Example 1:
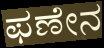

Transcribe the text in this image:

ಫಣೇನ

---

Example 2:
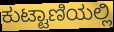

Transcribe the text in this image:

ಕುಟ್ಟಾಣಿಯಲ್ಲಿ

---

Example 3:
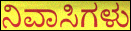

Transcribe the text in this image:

ನಿವಾಸಿಗಳು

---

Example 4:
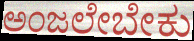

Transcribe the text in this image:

ಅಂಜಲೇಬೇಕು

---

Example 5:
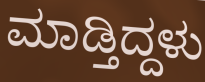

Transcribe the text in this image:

ಮಾಡ್ತಿದ್ದಳು